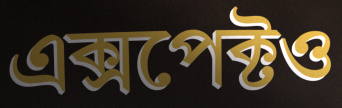
এক্সপেক্টও